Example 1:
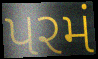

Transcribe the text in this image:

પરમં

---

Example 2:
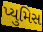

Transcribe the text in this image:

પ્યુમિસ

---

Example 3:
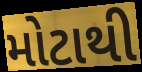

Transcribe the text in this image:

મોટાથી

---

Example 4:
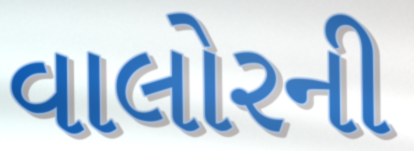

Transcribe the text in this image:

વાલોરની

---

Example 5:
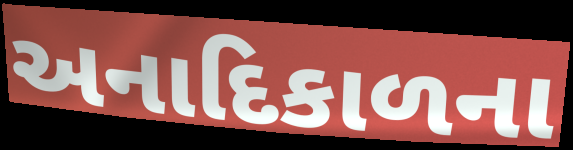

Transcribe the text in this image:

અનાદિકાળના